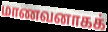
மாணவனாகக்